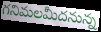
గనిమలమీదనున్న